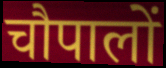
चौपालों